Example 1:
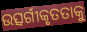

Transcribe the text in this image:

ଉତ୍ସର୍ଗୀକୃତତାକୁ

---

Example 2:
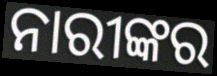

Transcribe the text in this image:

ନାରୀଙ୍କର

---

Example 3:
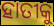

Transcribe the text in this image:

ହାତୀକୁ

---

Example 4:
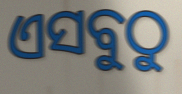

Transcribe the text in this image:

ଏସବୁଠୁ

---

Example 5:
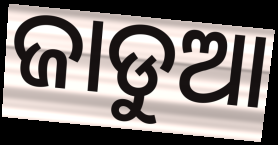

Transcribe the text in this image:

ଜାଡୁଆ